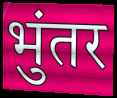
भुंतर